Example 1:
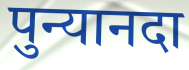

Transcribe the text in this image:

पुन्यानदा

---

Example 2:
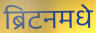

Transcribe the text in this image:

ब्रिटनमधे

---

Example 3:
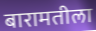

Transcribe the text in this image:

बारामतीला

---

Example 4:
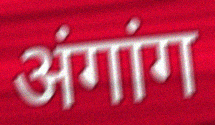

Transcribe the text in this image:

अंगांग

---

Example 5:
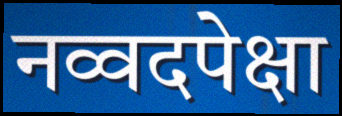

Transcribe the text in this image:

नव्वदपेक्षा